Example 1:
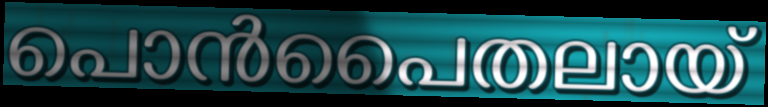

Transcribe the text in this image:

പൊൻപൈതലായ്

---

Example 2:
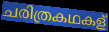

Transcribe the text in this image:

ചരിത്രകഥകള്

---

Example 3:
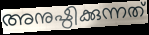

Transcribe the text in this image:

അനുഷ്ഠിക്കുന്നത്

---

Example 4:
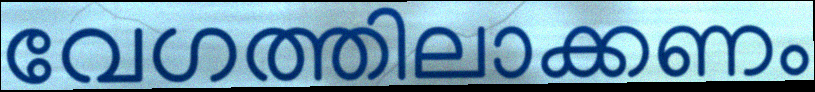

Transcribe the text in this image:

വേഗത്തിലാക്കണം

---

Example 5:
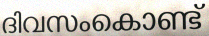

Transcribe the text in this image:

ദിവസംകൊണ്ട്